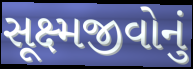
સૂક્ષ્મજીવોનું